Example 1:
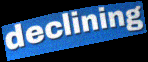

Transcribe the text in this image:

declining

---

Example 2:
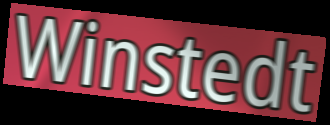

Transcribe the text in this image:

Winstedt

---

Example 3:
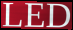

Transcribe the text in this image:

LED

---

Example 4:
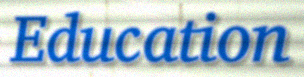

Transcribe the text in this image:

Education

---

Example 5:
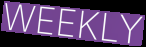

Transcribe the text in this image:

WEEKLY